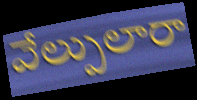
వేల్పులారా